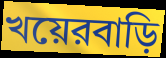
খয়েরবাড়ি